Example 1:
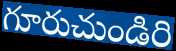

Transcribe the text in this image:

గూరుచుండిరి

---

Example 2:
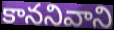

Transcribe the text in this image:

కాననివాని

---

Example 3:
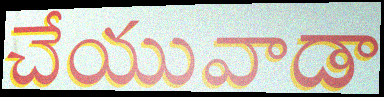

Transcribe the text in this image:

చేయువాడా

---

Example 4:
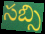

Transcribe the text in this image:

సబ్సి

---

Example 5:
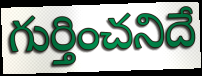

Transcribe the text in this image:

గుర్తించనిదే